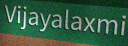
Vijayalaxmi